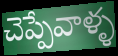
చెప్పేవాళ్ళ